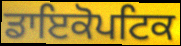
ਡਾਇਕੋਪਟਿਕ